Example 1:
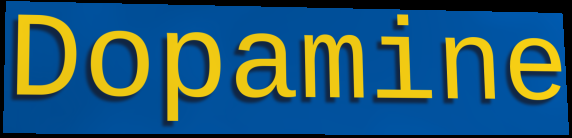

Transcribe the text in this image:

Dopamine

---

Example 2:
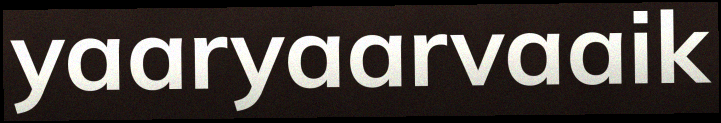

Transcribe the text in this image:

yaaryaarvaaik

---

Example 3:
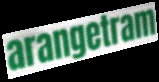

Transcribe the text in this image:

arangetram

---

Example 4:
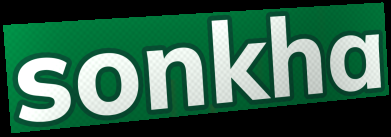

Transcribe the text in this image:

sonkha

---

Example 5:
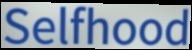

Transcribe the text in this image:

Selfhood